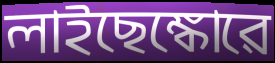
লাইছেঙ্কোৱে